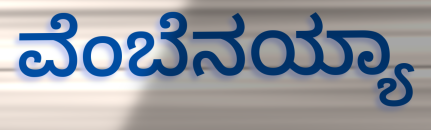
ವೆಂಬೆನಯ್ಯಾ